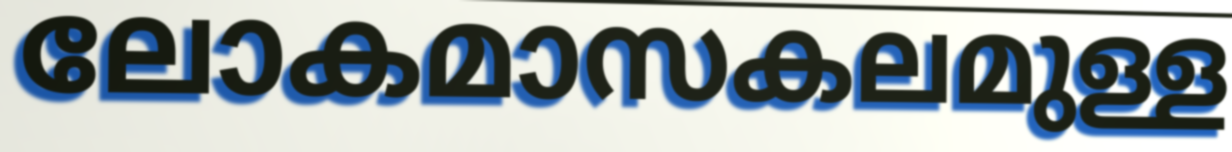
ലോകമാസകലമുള്ള